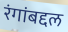
रंगांबद्दल